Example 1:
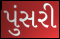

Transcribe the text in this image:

પુંસરી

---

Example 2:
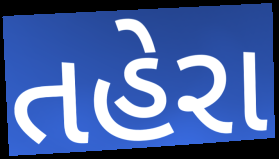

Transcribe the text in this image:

તહેરા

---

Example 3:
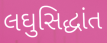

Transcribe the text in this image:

લઘુસિદ્ધાંત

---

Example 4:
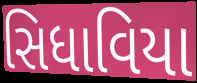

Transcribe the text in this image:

સિધાવિયા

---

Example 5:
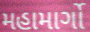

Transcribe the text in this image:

મહામાર્ગો